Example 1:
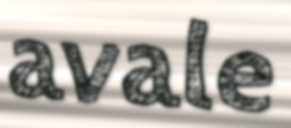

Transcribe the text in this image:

avale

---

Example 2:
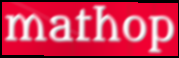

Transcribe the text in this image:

mathop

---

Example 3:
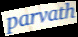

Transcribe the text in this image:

parvath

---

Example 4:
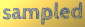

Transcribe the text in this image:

sampled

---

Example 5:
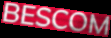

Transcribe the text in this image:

BESCOM